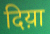
दिय़ा